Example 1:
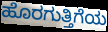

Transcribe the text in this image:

ಹೊರಗುತ್ತಿಗೆಯ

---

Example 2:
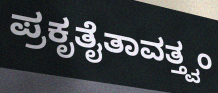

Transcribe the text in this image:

ಪ್ರಕೃತೈತಾವತ್ತ್ವಂ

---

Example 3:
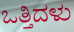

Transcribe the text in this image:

ಒತ್ತಿದಳು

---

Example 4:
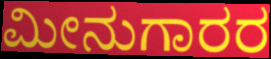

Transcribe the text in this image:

ಮೀನುಗಾರರ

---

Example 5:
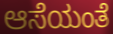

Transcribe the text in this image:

ಆಸೆಯಂತೆ